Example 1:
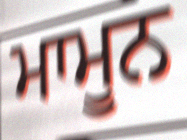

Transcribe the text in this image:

ਮਾਮੂਨ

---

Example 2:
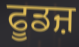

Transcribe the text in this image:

ਫੂਡਜ਼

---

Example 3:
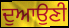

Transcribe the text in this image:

ਦੁਆਉਣੀ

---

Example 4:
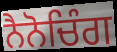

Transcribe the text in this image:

ਨੈਨੋਚਿੰਗ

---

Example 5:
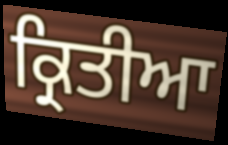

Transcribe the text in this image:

ਕ੍ਰਿਤੀਆ